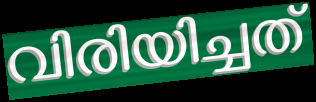
വിരിയിച്ചത്